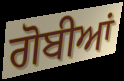
ਗੋਬੀਆਂ